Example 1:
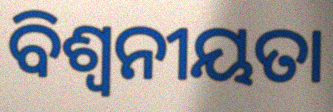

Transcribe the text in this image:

ବିଶ୍ୱନୀୟତା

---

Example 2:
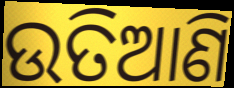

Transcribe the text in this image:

ଉତିଆଣି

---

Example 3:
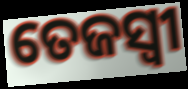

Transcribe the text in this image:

ତେଜସ୍ବୀ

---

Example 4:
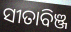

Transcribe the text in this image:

ସୀତାବିଞ୍ଜ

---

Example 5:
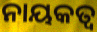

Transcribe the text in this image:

ନାୟକତ୍ୱ